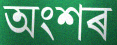
অংশৰ